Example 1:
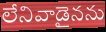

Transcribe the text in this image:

లేనివాడైనను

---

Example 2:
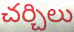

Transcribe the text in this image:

చర్చిలు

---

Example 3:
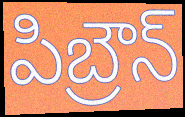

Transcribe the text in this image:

పిబ్రౌన్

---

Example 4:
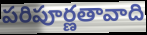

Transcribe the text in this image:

పరిపూర్ణతావాది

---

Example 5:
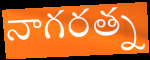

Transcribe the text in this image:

నాగరత్న